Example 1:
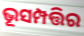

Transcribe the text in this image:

ଭୂସମ୍ପତ୍ତିର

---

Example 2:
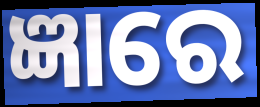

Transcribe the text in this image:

ଜ୍ଞାରେ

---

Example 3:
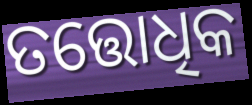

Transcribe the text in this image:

ତତ୍ତୋଧିକ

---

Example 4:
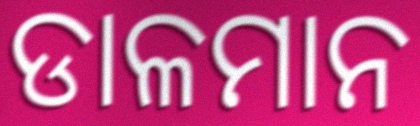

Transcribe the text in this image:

ଡାଳମାନ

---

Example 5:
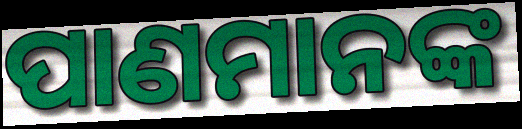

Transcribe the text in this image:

ପାଣମାନଙ୍କ